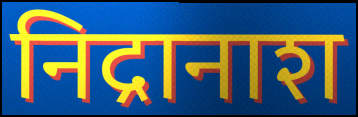
निद्रानाश